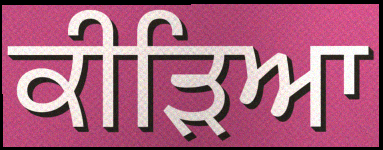
ਕੀੜਿਆ